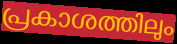
പ്രകാശത്തിലും